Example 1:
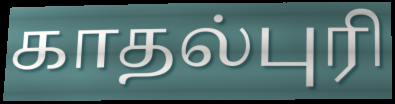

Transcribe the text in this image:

காதல்புரி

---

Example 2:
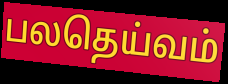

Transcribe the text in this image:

பலதெய்வம்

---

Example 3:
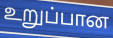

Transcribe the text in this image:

உறுப்பான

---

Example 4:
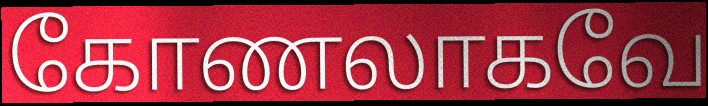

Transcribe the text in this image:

கோணலாகவே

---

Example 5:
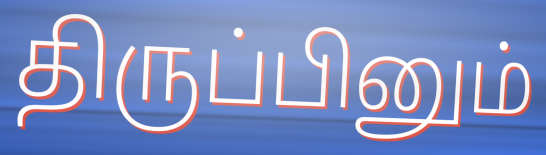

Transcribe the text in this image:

திருப்பினும்